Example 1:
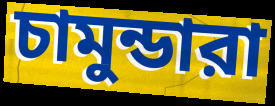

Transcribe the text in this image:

চামুন্ডারা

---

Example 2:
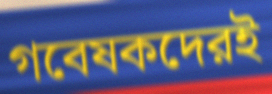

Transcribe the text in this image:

গবেষকদেরই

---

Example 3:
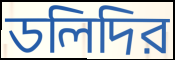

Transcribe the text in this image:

ডলিদির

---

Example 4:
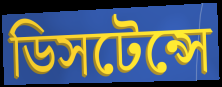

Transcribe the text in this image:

ডিসটেন্সে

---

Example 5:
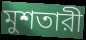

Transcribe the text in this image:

মুশতারী